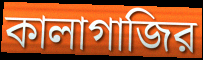
কালাগাজির